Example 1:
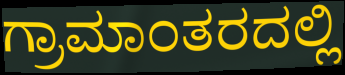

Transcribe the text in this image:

ಗ್ರಾಮಾಂತರದಲ್ಲಿ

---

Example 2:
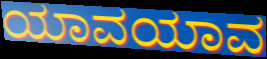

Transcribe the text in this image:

ಯಾವಯಾವ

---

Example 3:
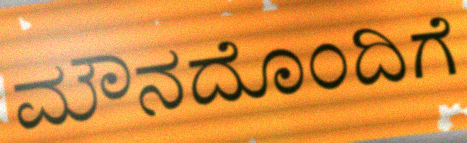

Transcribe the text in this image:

ಮೌನದೊಂದಿಗೆ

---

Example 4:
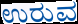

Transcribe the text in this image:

ಉರುವ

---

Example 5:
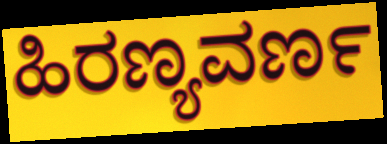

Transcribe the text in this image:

ಹಿರಣ್ಯವರ್ಣ